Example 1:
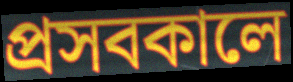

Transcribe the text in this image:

প্রসবকালে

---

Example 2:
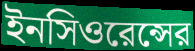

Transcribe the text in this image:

ইনসিওরেন্সের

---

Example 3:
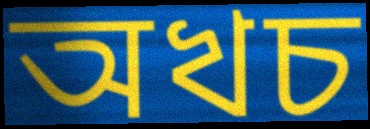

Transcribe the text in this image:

অখচ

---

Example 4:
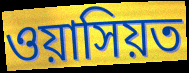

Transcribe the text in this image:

ওয়াসিয়ত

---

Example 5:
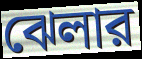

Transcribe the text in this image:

ঝেলার